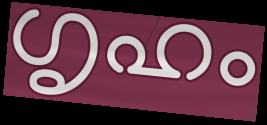
ഗൃഹം